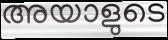
അയാളുടെ